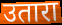
उतारा